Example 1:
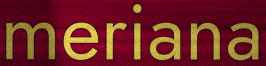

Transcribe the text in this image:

meriana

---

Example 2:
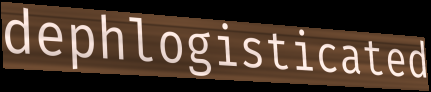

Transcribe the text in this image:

dephlogisticated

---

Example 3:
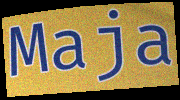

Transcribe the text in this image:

Maja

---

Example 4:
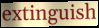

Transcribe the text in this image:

extinguish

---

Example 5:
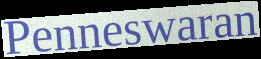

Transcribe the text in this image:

Penneswaran